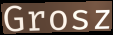
Grosz